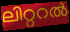
ലിറ്ററൽ